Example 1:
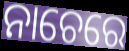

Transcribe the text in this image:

ନାଚେରେ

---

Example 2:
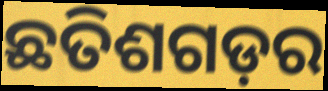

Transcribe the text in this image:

ଛତିଶଗଡ଼ର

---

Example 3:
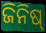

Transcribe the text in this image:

ଜିନିଷ୍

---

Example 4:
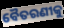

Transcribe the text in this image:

ବୈତରଣୀକୁ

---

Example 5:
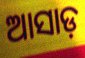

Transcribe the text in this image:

ଆସାଡ଼